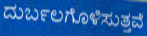
ದುರ್ಬಲಗೊಳಿಸುತ್ತವೆ